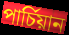
পাৰ্চিয়ান